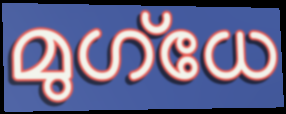
മുഗ്ധേ